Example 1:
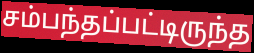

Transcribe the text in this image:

சம்பந்தப்பட்டிருந்த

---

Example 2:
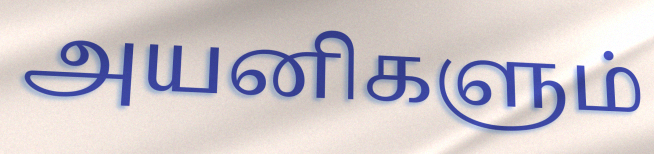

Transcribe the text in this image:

அயனிகளும்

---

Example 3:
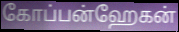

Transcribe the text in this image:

கோப்பன்ஹேகன்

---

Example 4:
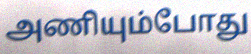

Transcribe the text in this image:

அணியும்போது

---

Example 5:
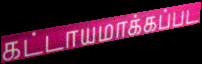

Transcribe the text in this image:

கட்டாயமாக்கப்பட